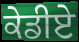
ਕੇਡੀਏ